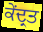
ਕੇਂਦ੍ਰਤ